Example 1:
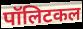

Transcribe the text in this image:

पॉलिटकल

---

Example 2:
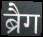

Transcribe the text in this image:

ब्रैग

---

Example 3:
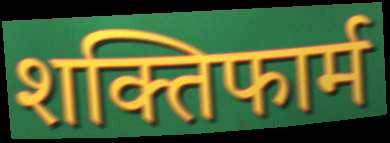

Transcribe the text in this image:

शक्तिफार्म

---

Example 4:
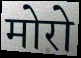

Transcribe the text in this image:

मोरो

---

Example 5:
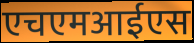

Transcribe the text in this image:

एचएमआईएस